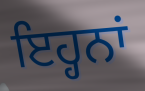
ਇਹ੍ਹਨਾਂ